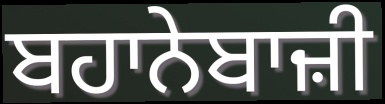
ਬਹਾਨੇਬਾਜ਼ੀ